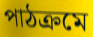
পাঠক্রমে